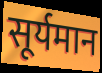
सूर्यमान